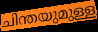
ചിന്തയുമുള്ള